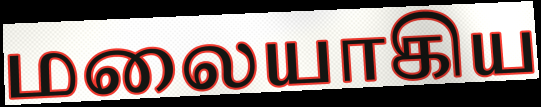
மலையாகிய